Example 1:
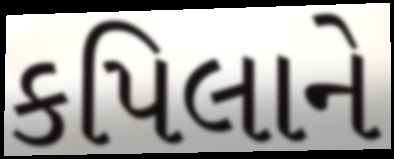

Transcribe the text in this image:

કપિલાને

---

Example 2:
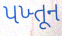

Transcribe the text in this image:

પખ્તૂન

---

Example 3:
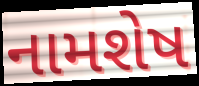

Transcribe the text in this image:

નામશેષ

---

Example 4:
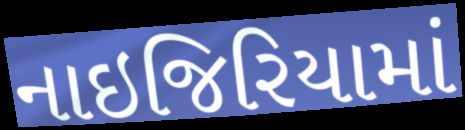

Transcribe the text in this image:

નાઇજિરિયામાં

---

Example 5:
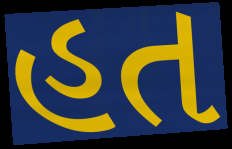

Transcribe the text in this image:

હત